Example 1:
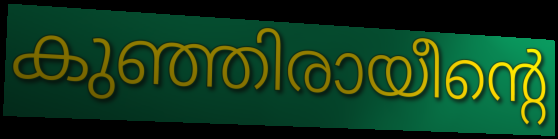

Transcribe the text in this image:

കുഞ്ഞിരായീന്റെ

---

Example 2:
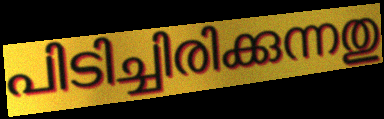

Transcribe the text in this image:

പിടിച്ചിരിക്കുന്നതു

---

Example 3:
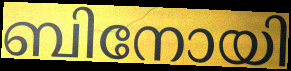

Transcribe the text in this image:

ബിനോയി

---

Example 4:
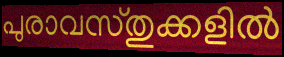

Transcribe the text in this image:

പുരാവസ്തുക്കളിൽ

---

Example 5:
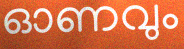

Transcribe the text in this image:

ഓണവും